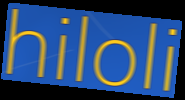
hiloli